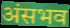
अंसभव